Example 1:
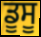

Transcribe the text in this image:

ਡੂਸੂ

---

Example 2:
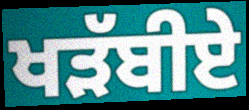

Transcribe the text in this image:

ਖੜੱਬੀਏ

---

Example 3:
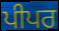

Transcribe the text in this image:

ਪੀਪਰ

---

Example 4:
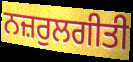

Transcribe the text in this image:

ਨਜ਼ਰੁਲਗੀਤੀ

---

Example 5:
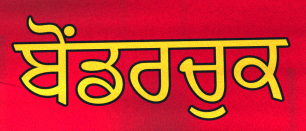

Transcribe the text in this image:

ਬੋਂਡਰਚੁਕ